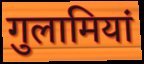
गुलामियां